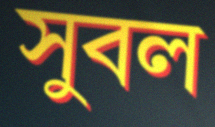
সুবল